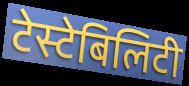
टेस्टेबिलिटी